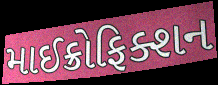
માઈક્રોફિક્શન